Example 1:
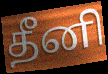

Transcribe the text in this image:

தீனி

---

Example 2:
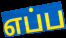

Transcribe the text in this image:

எப்ப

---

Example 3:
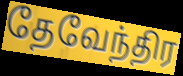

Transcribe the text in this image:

தேவேந்திர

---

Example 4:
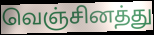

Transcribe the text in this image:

வெஞ்சினத்து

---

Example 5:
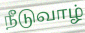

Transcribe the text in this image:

நீடுவாழ்